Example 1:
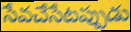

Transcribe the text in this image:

సేవచేసేటప్పుడు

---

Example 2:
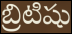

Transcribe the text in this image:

బ్రిటిషు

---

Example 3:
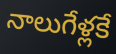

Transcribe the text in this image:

నాలుగేళ్లకే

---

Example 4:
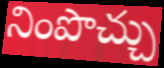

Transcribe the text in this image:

నింపొచ్చు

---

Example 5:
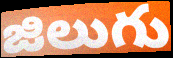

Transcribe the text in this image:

జిలుగు